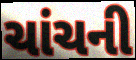
ચાંચની